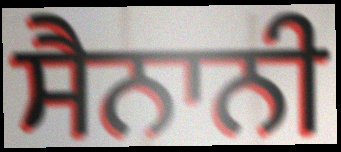
ਸੈਨਾਨੀ